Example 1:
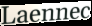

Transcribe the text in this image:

Laennec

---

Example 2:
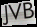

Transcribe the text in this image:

JVB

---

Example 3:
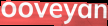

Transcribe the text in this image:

ooveyan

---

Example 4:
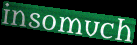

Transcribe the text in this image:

insomuch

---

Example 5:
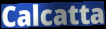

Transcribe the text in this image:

Calcatta